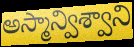
అస్మాన్విశ్వాని